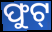
ଫୁଟ୍